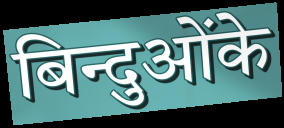
बिन्दुओंके